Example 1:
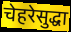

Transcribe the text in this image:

चेहरेसुद्धा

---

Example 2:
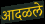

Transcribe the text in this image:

आदळले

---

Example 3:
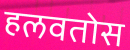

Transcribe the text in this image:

हलवतोस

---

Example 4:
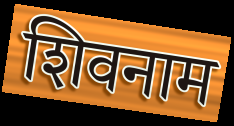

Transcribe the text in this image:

शिवनाम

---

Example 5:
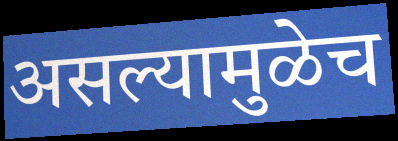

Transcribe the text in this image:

असल्यामुळेच